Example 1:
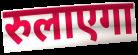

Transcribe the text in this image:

रुलाएगा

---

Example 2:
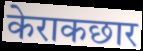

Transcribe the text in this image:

केराकछार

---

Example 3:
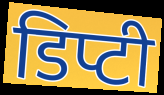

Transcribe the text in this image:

डिप्‍टी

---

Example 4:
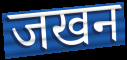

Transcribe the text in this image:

जखन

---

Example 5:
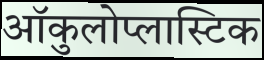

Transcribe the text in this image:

ऑकुलोप्लास्टिक